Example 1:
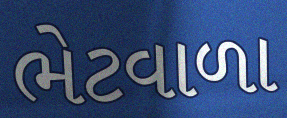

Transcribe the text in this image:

ભેટવાળા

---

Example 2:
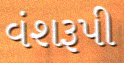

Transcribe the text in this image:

વંશરૂપી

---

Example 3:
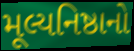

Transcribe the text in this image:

મૂલ્યનિષ્ઠાનો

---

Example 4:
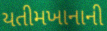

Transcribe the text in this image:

યતીમખાનાની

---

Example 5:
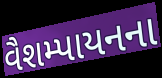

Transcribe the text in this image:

વૈશમ્પાયનના